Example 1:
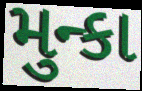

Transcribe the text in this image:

મુન્કા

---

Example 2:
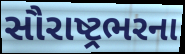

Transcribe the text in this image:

સૌરાષ્ટ્રભરના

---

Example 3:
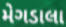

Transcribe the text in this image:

મેગડાલા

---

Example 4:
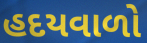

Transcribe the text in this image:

હદયવાળો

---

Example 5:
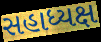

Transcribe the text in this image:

સહાધ્યક્ષ